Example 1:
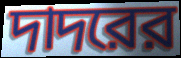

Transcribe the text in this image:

দাদরের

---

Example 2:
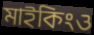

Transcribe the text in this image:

মাইকিংও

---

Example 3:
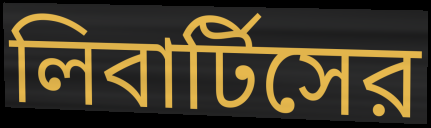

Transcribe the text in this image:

লিবার্টিসের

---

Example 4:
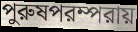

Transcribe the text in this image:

পুরুষপরম্পরায়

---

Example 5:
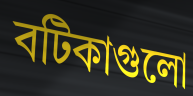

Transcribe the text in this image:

বটিকাগুলো